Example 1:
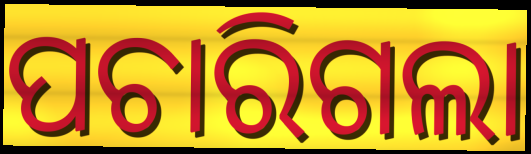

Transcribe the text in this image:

ପଚାରିଗଲା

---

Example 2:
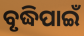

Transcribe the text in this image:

ବୃଦ୍ଧିପାଇଁ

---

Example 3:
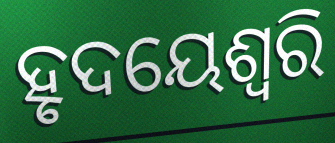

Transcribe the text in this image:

ହୃଦୟେଶ୍ଵରି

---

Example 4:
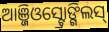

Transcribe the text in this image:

ଆଞ୍ଜିଓସ୍ଟ୍ରୋଙ୍ଗିଲସ୍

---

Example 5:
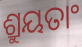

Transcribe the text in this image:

ଶ୍ରୁୟତାଂ